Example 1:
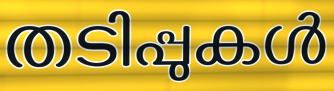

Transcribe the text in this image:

തടിപ്പുകൾ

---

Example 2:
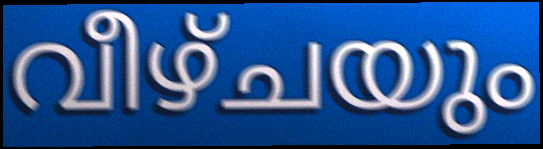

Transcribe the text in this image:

വീഴ്ചയും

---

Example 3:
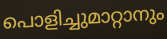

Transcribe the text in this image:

പൊളിച്ചുമാറ്റാനും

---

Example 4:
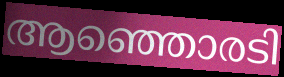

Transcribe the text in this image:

ആഞ്ഞൊരടി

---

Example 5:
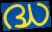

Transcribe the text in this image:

ദ്ധ